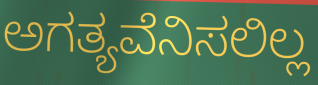
ಅಗತ್ಯವೆನಿಸಲಿಲ್ಲ